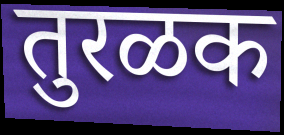
तुरळक